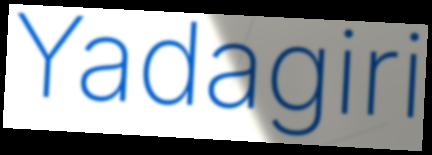
Yadagiri